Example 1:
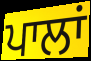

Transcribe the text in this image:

ਪਾਲਾਂ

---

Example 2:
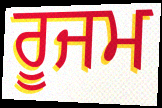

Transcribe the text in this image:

ਰੂਜਮ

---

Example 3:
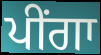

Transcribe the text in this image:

ਪੀਂਗਾ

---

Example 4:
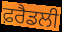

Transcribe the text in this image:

ਫ਼ਰੈਡਲੀ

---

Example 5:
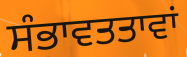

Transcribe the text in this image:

ਸੰਭਾਵਤਤਾਵਾਂ